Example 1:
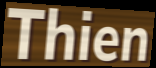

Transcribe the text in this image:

Thien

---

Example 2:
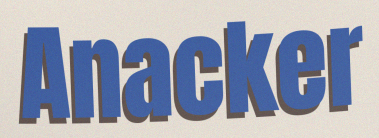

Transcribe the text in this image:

Anacker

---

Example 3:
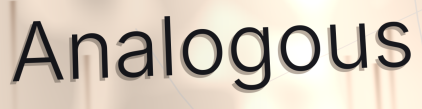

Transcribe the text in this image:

Analogous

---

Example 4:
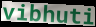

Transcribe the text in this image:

vibhuti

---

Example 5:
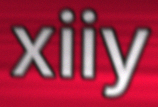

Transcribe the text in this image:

xiiy